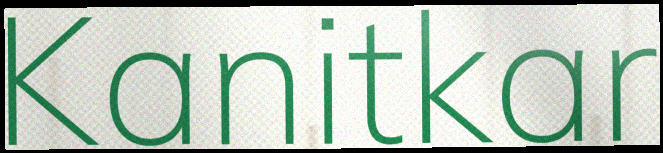
Kanitkar